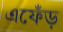
এফেঁড়